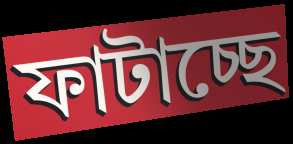
ফাটাচ্ছে